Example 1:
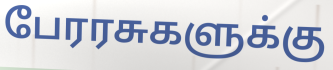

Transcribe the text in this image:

பேரரசுகளுக்கு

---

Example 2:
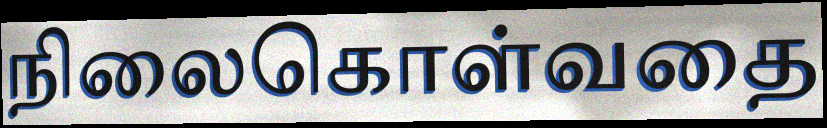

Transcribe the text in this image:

நிலைகொள்வதை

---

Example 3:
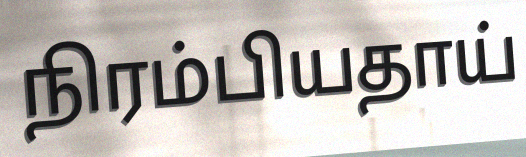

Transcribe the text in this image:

நிரம்பியதாய்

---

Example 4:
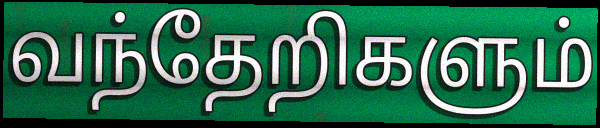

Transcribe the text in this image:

வந்தேறிகளும்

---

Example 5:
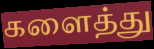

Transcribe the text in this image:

களைத்து